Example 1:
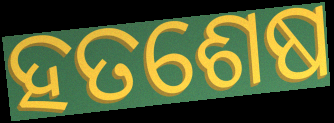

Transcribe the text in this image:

ହତଶେଷ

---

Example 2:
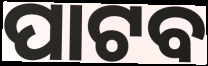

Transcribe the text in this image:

ପାଟବ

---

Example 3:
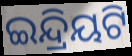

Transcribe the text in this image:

ଇନ୍ଦ୍ରିୟଟି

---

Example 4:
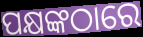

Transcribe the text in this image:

ପକ୍ଷଙ୍କଠାରେ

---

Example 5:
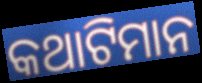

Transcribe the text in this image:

କଥାଟିମାନ